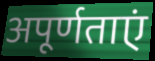
अपूर्णताएं